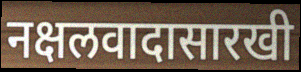
नक्षलवादासारखी